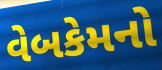
વેબકેમનો